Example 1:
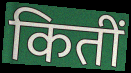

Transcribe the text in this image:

कितीं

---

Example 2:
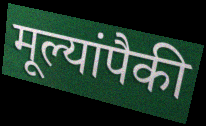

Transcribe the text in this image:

मूल्यांपैकी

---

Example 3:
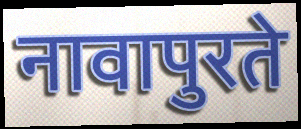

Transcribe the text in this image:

नावापुरते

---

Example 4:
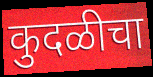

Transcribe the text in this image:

कुदळीचा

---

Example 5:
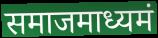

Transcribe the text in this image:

समाजमाध्यमं